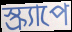
স্ক্র্যাপে